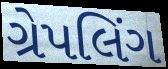
ગ્રેપલિંગ